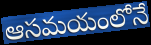
ఆసమయంలోనే